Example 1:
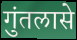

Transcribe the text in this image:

गुंतलासे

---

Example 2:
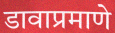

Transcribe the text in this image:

डावाप्रमाणे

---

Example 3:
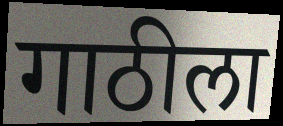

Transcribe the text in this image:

गाठीला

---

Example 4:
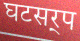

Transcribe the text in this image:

घटसर्प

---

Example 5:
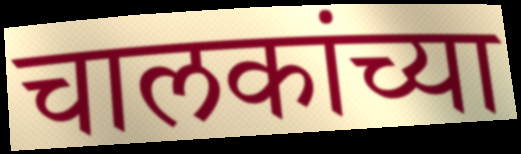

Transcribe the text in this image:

चालकांच्या